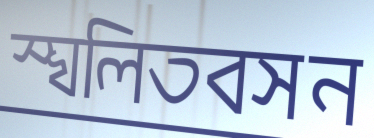
স্খলিতবসন